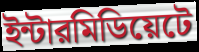
ইন্টারমিডিয়েটে